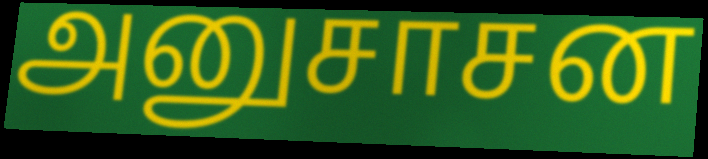
அனுசாசன